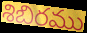
శిబిరము